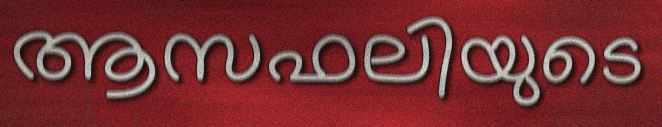
ആസഫലിയുടെ